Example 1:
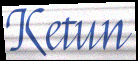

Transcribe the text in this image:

Ketun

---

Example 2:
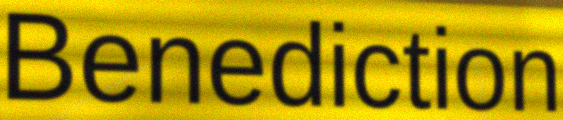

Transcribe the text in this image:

Benediction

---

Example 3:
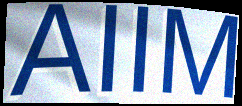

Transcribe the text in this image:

AIIM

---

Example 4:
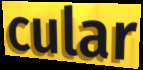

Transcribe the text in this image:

cular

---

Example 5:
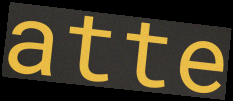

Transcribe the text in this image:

atte